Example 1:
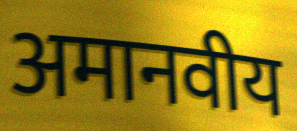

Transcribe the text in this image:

अमानवीय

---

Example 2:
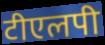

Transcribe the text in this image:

टीएलपी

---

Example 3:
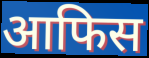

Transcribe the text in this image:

आफिस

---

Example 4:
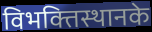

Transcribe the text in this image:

विभक्तिस्थानके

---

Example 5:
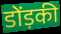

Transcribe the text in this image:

डोंड़की